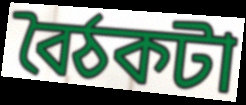
বৈঠকটা